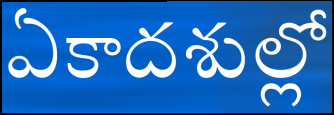
ఏకాదశుల్లో